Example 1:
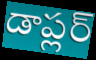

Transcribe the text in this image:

డాప్లర్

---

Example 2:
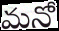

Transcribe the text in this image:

మనో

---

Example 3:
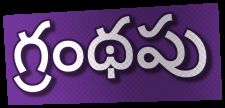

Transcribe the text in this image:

గ్రంథపు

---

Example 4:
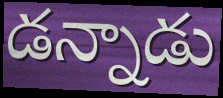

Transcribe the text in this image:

డన్నాడు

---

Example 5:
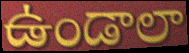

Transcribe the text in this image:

ఉండాలా